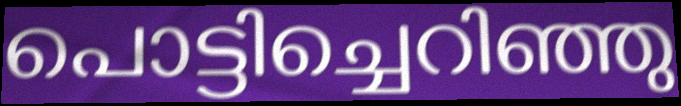
പൊട്ടിച്ചെറിഞ്ഞു